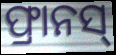
ଫ୍ରାନସ୍